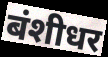
बंशीधर